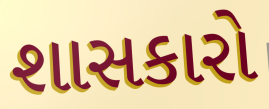
શાસકારો